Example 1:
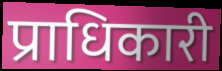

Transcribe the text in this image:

प्राधिकारी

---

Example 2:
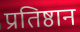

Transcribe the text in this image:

प्रतिष्ठान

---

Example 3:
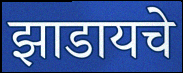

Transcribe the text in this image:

झाडायचे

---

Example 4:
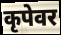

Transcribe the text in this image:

कृपेवर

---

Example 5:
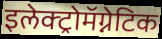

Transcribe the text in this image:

इलेक्ट्रोमॅग्नेटिक